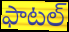
ఫాటల్